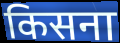
किसना